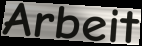
Arbeit